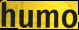
humo